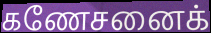
கணேசனைக்